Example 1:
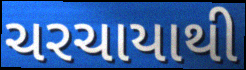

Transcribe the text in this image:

ચરચાયાથી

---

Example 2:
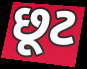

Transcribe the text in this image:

છૂટ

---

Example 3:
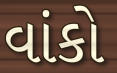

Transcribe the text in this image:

વાંકો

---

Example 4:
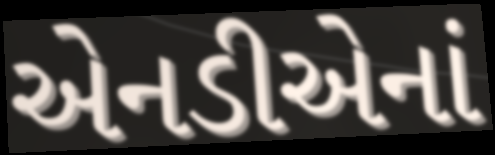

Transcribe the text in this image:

એનડીએનાં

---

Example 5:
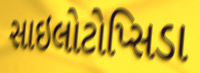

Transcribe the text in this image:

સાઇલોટોપ્સિડા